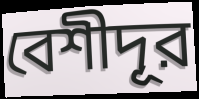
বেশীদূর